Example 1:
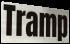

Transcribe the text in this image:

Tramp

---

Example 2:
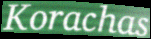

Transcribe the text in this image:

Korachas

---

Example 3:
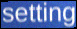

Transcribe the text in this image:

setting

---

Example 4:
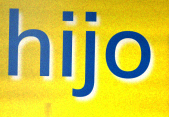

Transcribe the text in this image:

hijo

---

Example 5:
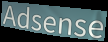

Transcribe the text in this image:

Adsense